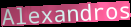
Alexandros